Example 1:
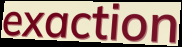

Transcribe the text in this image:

exaction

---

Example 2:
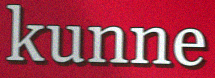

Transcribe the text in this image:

kunne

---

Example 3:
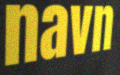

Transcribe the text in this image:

navn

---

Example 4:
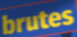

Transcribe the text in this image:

brutes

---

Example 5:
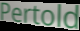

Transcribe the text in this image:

Pertold